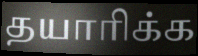
தயாரிக்க